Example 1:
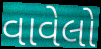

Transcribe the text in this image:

વાવેલો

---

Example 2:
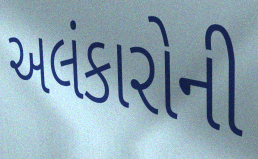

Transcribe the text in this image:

અલંકારોની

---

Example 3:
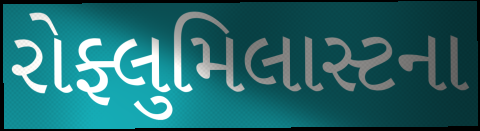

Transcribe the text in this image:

રોફ્લુમિલાસ્ટના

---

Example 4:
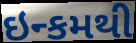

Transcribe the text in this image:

ઇન્કમથી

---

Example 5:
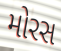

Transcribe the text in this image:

મોરસ